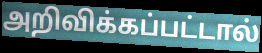
அறிவிக்கப்பட்டால்